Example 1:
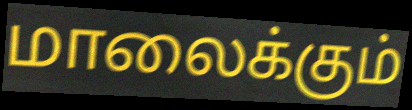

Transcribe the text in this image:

மாலைக்கும்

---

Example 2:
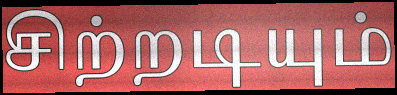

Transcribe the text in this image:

சிற்றடியும்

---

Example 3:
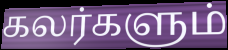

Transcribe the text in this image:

கலர்களும்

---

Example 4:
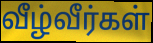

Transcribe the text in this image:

வீழ்வீர்கள்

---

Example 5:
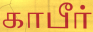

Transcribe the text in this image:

காபீர்